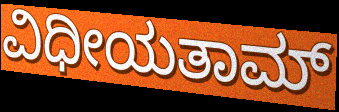
ವಿಧೀಯತಾಮ್